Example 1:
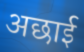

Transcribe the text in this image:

अछाई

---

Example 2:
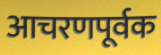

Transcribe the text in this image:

आचरणपूर्वक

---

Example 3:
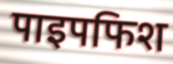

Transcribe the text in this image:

पाइपफिश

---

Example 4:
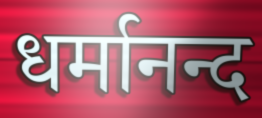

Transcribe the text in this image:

धर्मानन्द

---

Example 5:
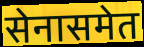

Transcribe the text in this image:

सेनासमेत